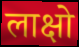
लाक्षो